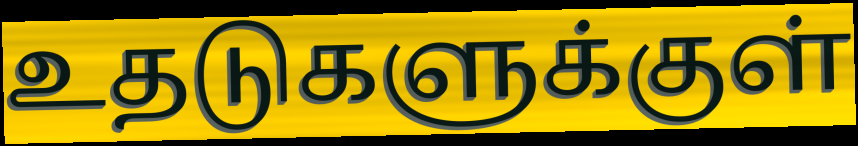
உதடுகளுக்குள்